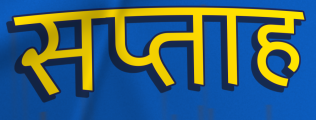
सप्ताह